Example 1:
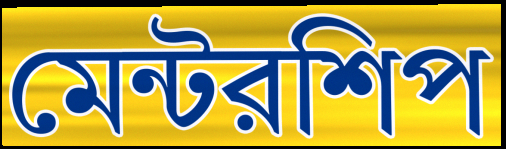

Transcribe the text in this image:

মেন্টরশিপ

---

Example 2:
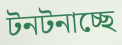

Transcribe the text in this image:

টনটনাচ্ছে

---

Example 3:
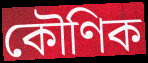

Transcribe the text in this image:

কৌণিক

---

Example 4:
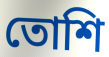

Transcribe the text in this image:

তোশি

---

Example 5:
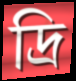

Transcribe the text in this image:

দ্রি